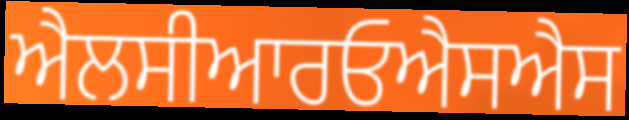
ਐਲਸੀਆਰਓਐਸਐਸ